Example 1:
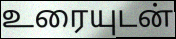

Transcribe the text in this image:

உரையுடன்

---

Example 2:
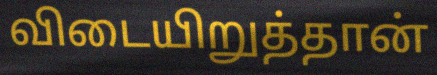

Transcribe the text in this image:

விடையிறுத்தான்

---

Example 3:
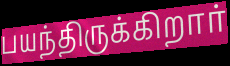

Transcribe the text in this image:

பயந்திருக்கிறார்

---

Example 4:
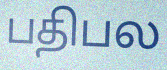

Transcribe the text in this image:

பதிபல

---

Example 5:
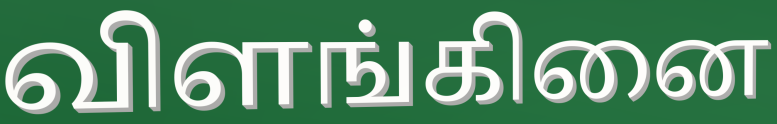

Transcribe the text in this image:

விளங்கினை